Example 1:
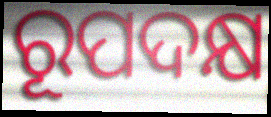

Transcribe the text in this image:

ରୂପଦକ୍ଷ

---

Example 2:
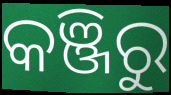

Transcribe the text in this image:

କଞ୍ଜିରୁ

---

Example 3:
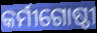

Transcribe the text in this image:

କର୍ମୀଗୋଷ୍ଠୀ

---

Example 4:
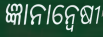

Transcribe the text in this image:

ଜ୍ଞାନାନ୍ୱେଷୀ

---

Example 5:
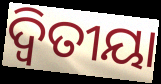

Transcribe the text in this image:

ଦ୍ଵିତୀୟା